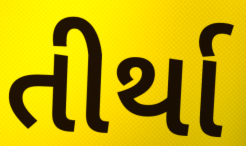
તીર્થા